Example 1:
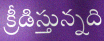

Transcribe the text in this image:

క్రీడిస్తున్నది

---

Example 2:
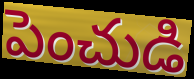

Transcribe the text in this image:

పెంచుడి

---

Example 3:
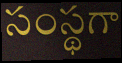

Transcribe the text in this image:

సంస్థగా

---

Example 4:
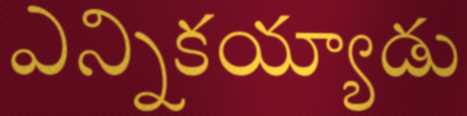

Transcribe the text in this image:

ఎన్నికయ్యాడు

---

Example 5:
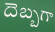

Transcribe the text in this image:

దెబ్బగా